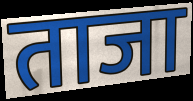
ताजा